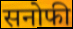
सनोफी